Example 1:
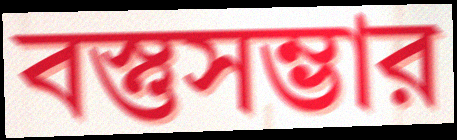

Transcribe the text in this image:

বস্তুসম্ভার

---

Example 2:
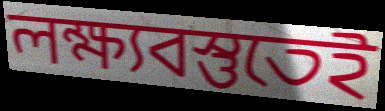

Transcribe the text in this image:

লক্ষ্যবস্তুতেই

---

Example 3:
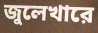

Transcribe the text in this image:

জুলেখারে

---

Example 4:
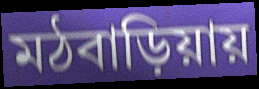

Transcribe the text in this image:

মঠবাড়িয়ায়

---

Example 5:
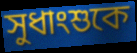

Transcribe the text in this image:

সুধাংশুকে